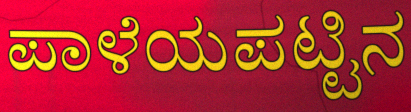
ಪಾಳೆಯಪಟ್ಟಿನ